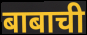
बाबाची